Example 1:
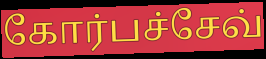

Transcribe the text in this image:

கோர்பச்சேவ்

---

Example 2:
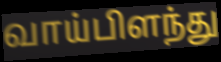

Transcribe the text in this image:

வாய்பிளந்து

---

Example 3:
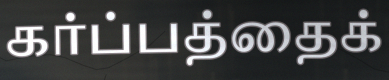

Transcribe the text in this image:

கர்ப்பத்தைக்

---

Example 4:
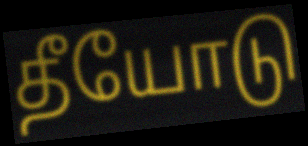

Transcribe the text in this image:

தீயோடு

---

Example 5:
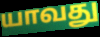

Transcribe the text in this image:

யாவது